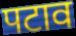
पटाव